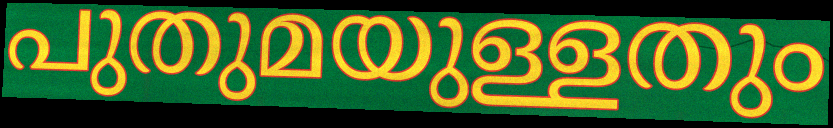
പുതുമയുള്ളതും